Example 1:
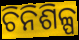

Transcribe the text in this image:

ଚିନିଶିଳ୍ପ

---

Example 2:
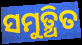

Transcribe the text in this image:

ସମୁତ୍ଥିତ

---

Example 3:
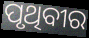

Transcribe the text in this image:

ପୃଥିବୀର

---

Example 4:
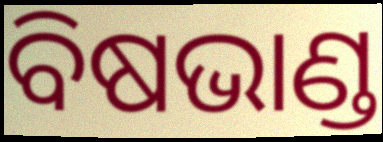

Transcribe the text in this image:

ବିଷଭାଣ୍ଡ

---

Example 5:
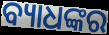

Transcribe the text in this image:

ବ୍ୟାଧଙ୍କର